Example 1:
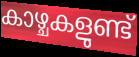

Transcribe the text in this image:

കാഴ്ചകളുണ്ട്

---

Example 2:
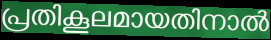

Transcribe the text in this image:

പ്രതികൂലമായതിനാൽ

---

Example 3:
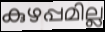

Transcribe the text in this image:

കുഴപ്പമില്ല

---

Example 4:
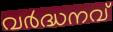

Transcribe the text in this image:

വർദ്ധനവ്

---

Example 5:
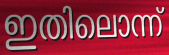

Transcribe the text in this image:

ഇതിലൊന്ന്